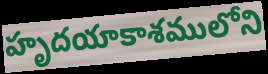
హృదయాకాశములోని